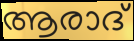
ആരാദ്